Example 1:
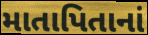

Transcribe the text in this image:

માતાપિતાનાં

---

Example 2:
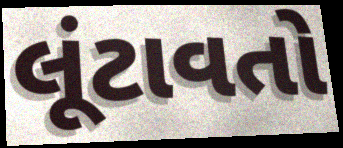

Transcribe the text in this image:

લૂંટાવતો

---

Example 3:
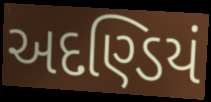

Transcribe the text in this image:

અદણ્ડિયં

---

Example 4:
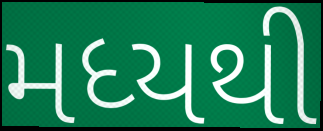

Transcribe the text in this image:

મધ્યથી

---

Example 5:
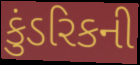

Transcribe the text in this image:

કુંડરિકની